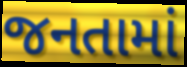
જનતામાં